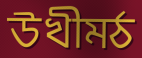
উখীমঠ